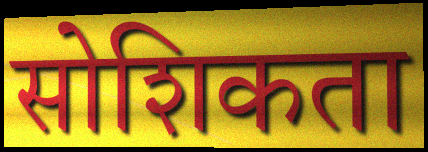
सोशिकता